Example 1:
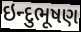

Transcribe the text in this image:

ઇન્દુભૂષણ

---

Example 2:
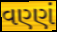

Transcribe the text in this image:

વણ્ણં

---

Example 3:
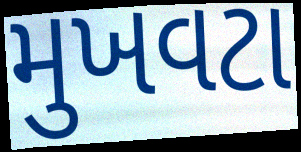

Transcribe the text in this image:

મુખવટા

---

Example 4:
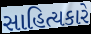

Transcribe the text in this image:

સાહિત્યકારે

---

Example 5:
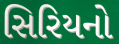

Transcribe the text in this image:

સિરિયનો